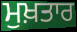
ਮੁਖ਼ਤਾਰ